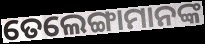
ତେଲେଙ୍ଗାମାନଙ୍କ